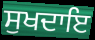
ਸੁਖਦਾਇ